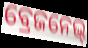
ବ୍ରେଜନେଭ୍